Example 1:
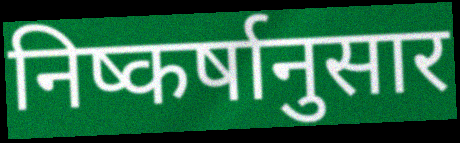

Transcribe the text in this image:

निष्कर्षानुसार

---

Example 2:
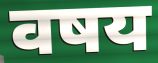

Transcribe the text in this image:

वषय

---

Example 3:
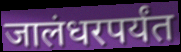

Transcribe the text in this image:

जालंधरपर्यंत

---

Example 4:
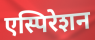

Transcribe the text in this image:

एस्पिरेशन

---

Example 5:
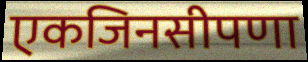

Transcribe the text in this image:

एकजिनसीपणा